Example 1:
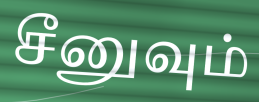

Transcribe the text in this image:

சீனுவும்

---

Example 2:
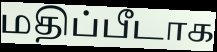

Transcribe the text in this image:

மதிப்பீடாக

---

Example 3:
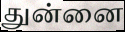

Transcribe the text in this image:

துன்னை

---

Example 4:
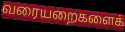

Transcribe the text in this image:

வரையறைகளைக்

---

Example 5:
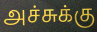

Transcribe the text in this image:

அச்சுக்கு